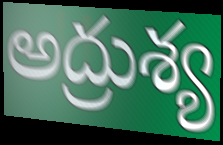
అద్రుశ్య